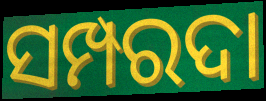
ସମ୍ପରଦା